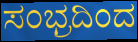
ಸಂಭ್ರದಿಂದ